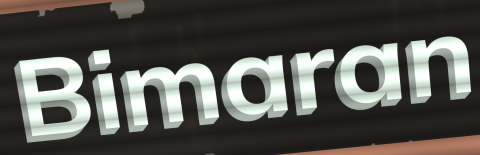
Bimaran